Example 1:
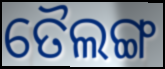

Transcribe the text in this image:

ତୈଲଙ୍ଗ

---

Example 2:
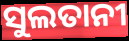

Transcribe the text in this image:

ସୁଲତାନୀ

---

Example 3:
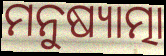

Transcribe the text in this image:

ମନୁଷ୍ୟାତ୍ମା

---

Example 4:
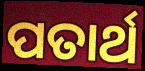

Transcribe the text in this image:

ପତାର୍ଥ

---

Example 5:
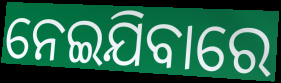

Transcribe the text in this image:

ନେଇଯିବାରେ